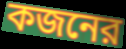
কজনের